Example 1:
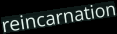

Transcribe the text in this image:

reincarnation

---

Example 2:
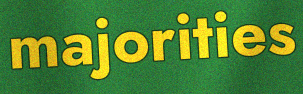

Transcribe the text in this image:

majorities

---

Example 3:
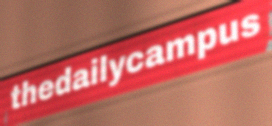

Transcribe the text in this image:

thedailycampus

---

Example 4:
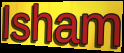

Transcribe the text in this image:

Isham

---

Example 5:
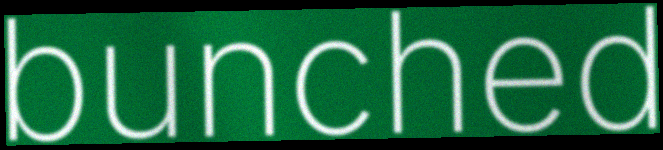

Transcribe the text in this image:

bunched